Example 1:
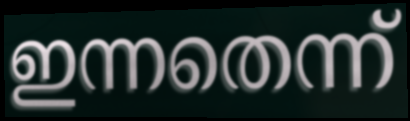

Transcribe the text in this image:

ഇന്നതെന്ന്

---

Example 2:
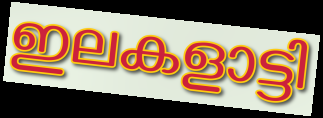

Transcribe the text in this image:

ഇലകളാട്ടി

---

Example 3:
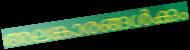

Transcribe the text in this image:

അലങ്കാരങ്ങൾക്കും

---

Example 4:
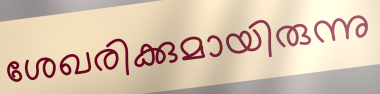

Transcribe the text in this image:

ശേഖരിക്കുമായിരുന്നു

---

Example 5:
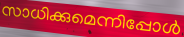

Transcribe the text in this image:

സാധിക്കുമെന്നിപ്പോൾ